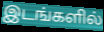
இடங்களில்